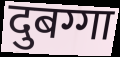
दुबग्गा